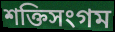
শক্তিসংগম